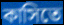
কাসিতে